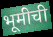
भूमीची